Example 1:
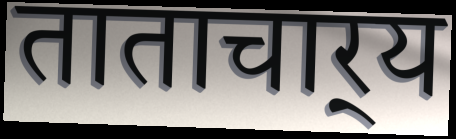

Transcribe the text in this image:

ताताचार्य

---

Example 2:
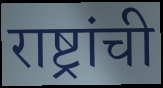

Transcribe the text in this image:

राष्ट्रांची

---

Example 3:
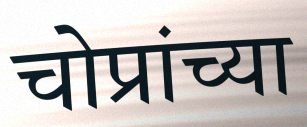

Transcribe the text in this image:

चोप्रांच्या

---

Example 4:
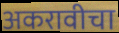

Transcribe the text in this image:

अकरावीचा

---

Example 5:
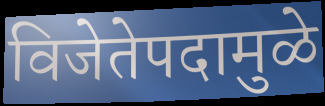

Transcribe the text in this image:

विजेतेपदामुळे